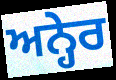
ਅਨ੍ਹੇਰ